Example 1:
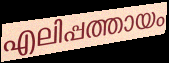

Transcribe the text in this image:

എലിപ്പത്തായം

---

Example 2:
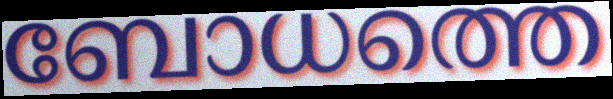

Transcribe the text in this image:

ബോധത്തെ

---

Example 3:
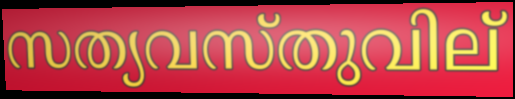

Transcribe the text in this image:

സത്യവസ്തുവില്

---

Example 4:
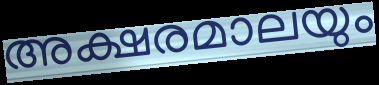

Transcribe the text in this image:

അക്ഷരമാലയും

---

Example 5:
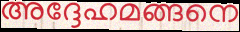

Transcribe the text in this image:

അദ്ദേഹമങ്ങനെ